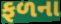
ફળના